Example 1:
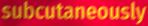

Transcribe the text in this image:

subcutaneously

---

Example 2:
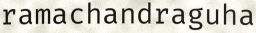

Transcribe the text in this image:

ramachandraguha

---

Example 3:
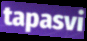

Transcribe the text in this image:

tapasvi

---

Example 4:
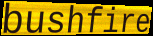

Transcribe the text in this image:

bushfire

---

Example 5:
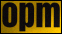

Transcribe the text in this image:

opm